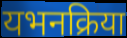
यभनक्रिया